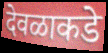
देवळाकडे